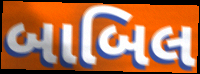
બાબિલ